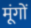
मूंगों